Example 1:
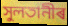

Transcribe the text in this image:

সুলতানীৰ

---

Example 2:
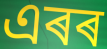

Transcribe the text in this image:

এৰৰ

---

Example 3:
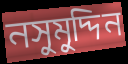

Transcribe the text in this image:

নসুমুদ্দিন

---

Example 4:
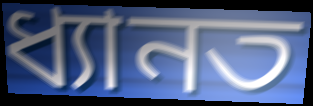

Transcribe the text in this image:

ধ্যানত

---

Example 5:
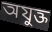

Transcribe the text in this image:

অযুক্ত